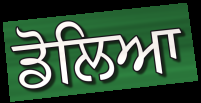
ਡੋਲਿਆ